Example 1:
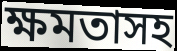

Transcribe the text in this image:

ক্ষমতাসহ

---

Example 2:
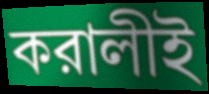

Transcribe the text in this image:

করালীই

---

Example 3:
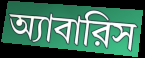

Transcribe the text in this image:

অ্যাবারিস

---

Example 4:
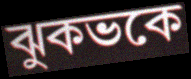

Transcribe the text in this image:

ঝুকভকে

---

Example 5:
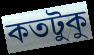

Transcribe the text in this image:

কতটুকু